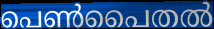
പെൺപൈതൽ